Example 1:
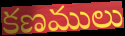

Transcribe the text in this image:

కణములు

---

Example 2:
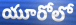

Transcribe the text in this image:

యూరోలో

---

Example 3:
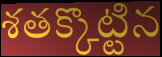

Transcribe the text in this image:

శతక్కొట్టిన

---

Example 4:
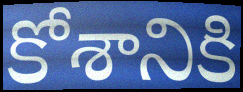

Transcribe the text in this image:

కోశానికి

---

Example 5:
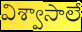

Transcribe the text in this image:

విశ్వాసాలే